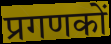
प्रगणकों